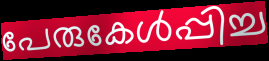
പേരുകേൾപ്പിച്ച